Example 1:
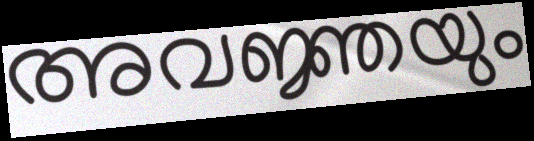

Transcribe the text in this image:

അവജ്ഞയും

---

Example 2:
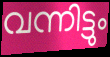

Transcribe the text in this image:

വന്നിട്ടും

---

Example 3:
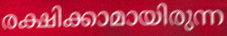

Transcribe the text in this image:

രക്ഷിക്കാമായിരുന്ന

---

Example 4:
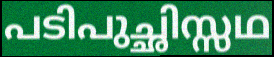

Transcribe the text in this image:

പടിപുച്ഛിസ്സഥ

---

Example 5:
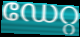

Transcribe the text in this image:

ഡേറ്റ